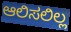
ಆಲಿಸಲಿಲ್ಲ